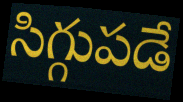
సిగ్గుపడే